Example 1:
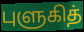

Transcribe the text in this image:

புளுகித்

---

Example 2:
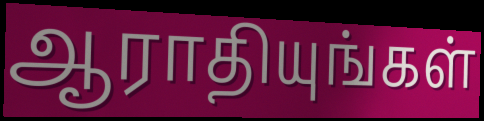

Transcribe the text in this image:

ஆராதியுங்கள்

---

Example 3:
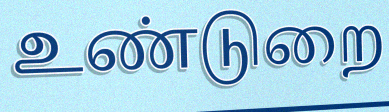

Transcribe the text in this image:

உண்டுறை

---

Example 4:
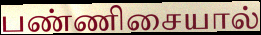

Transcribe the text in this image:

பண்ணிசையால்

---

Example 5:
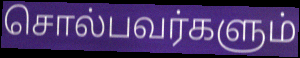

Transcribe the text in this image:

சொல்பவர்களும்